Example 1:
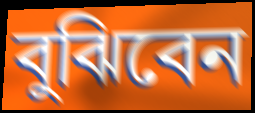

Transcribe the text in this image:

বুঝিবেন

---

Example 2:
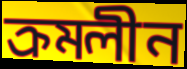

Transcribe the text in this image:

ক্রমলীন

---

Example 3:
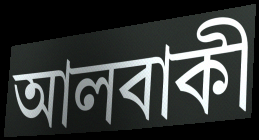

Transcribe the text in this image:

আলবাকী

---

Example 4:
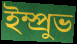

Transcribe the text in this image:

ইম্প্রুভ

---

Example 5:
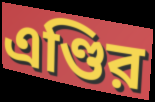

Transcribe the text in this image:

এণ্ডির